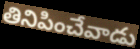
తినిపించేవాడు